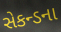
સેકન્ડના